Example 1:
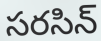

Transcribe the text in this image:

సరసిన్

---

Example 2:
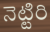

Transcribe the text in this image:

నెట్టిరి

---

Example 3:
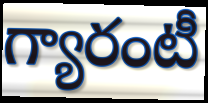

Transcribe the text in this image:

గ్యారంటీ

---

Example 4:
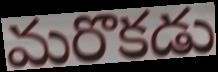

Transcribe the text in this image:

మరొకడు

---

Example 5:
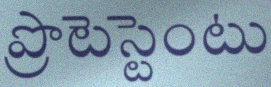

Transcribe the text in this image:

ప్రొటెస్టెంటు